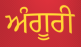
ਅੰਗੂਰੀ